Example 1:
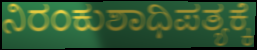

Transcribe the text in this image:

ನಿರಂಕುಶಾಧಿಪತ್ಯಕ್ಕೆ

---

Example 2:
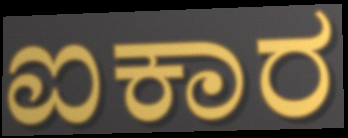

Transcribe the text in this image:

ಐಕಾರ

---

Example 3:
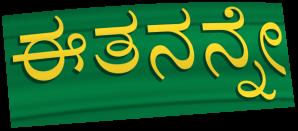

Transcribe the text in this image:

ಈತನನ್ನೇ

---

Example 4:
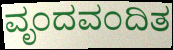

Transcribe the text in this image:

ವೃಂದವಂದಿತ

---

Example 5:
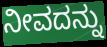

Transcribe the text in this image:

ನೀವದನ್ನು